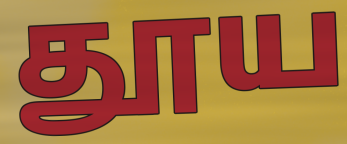
தூய